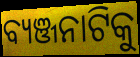
ବ୍ୟଞ୍ଜନାଟିକୁ